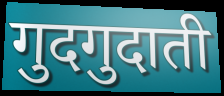
गुदगुदाती